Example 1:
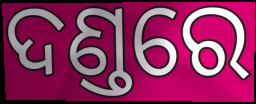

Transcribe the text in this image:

ଦଣ୍ଡରେ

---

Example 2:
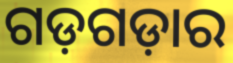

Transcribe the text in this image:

ଗଡ଼ଗଡ଼ାର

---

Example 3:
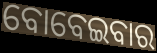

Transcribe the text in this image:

ବୋବେଇବାର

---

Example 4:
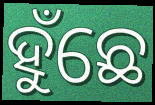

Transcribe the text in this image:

ହୁଁଛେ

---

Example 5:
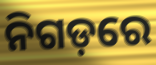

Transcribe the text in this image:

ନିଗଡ଼ରେ